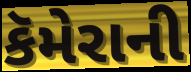
કૅમેરાની